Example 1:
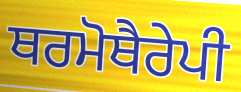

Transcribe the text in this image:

ਥਰਮੋਥੈਰੇਪੀ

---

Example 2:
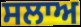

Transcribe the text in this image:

ਸਲਾਅ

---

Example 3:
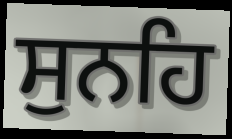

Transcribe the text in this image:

ਸੁਨਹਿ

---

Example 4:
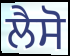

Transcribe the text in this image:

ਲੈਸੋ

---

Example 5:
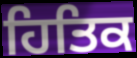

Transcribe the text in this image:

ਹਿਤਿਕ